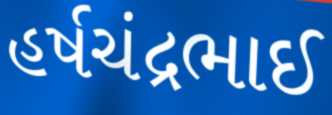
હર્ષચંદ્રભાઈ